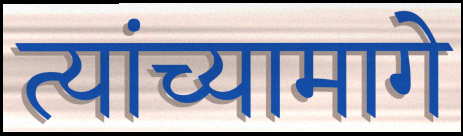
त्यांच्यामागे